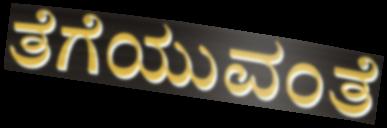
ತೆಗೆಯುವಂತೆ